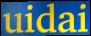
uidai